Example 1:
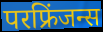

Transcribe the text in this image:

परफ्रिंजन्स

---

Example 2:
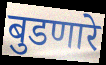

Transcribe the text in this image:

बुडणारे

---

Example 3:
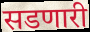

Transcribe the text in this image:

सडणारी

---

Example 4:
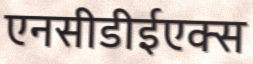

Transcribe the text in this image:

एनसीडीईएक्स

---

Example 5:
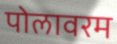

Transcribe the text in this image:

पोलावरम